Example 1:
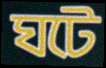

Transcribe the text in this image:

ঘটে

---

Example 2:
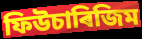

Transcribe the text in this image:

ফিউচাৰিজিম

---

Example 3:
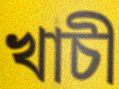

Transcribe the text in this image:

খাচী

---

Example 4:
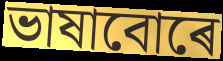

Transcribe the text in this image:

ভাষাবোৰে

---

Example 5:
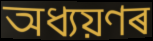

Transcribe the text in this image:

অধ্যয়ণৰ